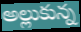
అల్లుకున్న